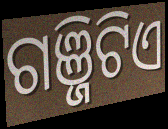
ଗଞ୍ଜିଟିଏ